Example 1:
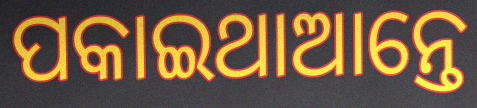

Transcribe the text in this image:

ପକାଇଥାଆନ୍ତେ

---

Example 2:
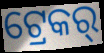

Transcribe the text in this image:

ଟ୍ରେକର୍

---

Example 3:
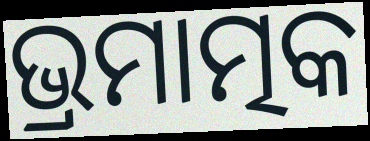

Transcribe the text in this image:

ଭ୍ରମାତ୍ମକ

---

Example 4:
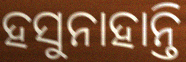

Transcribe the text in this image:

ହସୁନାହାନ୍ତି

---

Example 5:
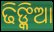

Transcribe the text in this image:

ଢିଙ୍କିଆ